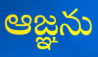
ఆజ్ఞను